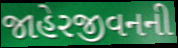
જાહેરજીવનની